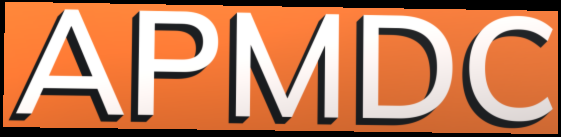
APMDC